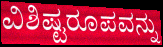
ವಿಶಿಷ್ಟರೂಪವನ್ನು